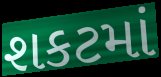
શકટમાં